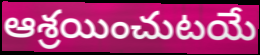
ఆశ్రయించుటయే